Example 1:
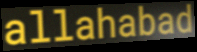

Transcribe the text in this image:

allahabad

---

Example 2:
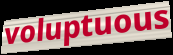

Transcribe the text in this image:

voluptuous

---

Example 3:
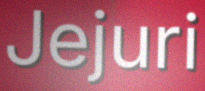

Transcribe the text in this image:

Jejuri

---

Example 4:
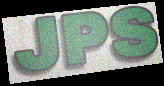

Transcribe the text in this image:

JPS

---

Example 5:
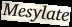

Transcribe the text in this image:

Mesylate